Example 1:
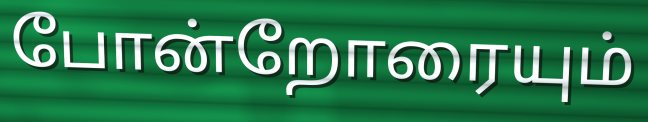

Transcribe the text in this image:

போன்றோரையும்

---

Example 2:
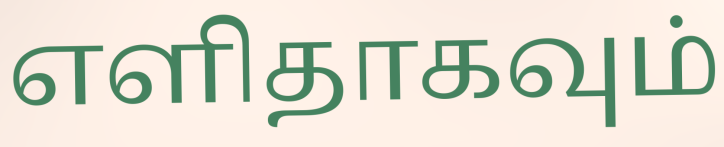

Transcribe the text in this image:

எளிதாகவும்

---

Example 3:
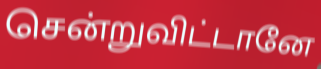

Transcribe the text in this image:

சென்றுவிட்டானே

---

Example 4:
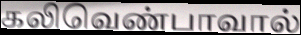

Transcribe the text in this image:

கலிவெண்பாவால்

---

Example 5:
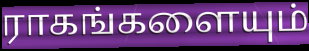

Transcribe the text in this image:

ராகங்களையும்